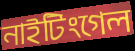
নাইটিংগেল